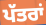
ਪੱਤਰਾਂ